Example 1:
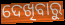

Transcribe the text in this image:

ଦେଖିବାରୁ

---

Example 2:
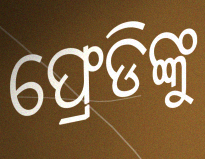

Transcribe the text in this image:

ଫ୍ରେଡିଙ୍କୁ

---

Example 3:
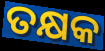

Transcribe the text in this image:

ତକ୍ଷକ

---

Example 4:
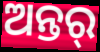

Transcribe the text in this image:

ଅନ୍ତର୍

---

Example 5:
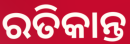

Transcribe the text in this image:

ରତିକାନ୍ତ